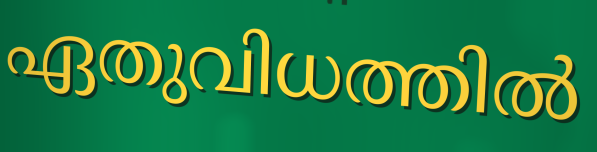
ഏതുവിധത്തിൽ